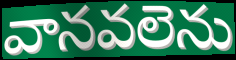
వానవలెను